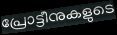
പ്രോട്ടീനുകളുടെ